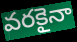
వరకైనా